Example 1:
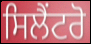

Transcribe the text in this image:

ਸਿਲੈਂਟਰੋ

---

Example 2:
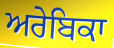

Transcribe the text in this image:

ਅਰੇਬਿਕਾ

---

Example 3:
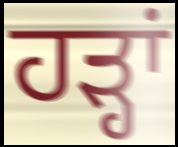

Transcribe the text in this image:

ਹਡ਼੍ਹਾਂ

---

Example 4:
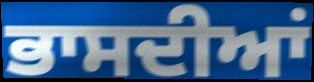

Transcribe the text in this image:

ਭਾਸਦੀਆਂ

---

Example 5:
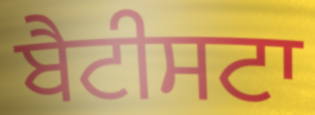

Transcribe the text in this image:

ਬੈਟੀਸਟਾ